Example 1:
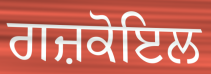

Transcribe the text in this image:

ਗਜ਼ਕੋਇਲ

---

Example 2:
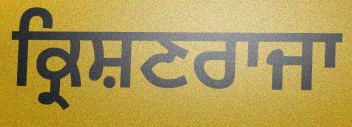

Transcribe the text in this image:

ਕ੍ਰਿਸ਼ਣਰਾਜਾ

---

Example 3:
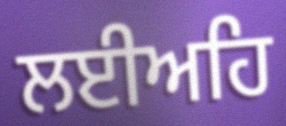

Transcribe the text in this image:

ਲਈਅਹਿ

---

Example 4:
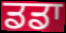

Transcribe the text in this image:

ਡਡਾ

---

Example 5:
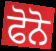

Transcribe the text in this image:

ਫੋਨੋ